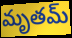
మృతమ్